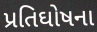
પ્રતિઘોષના